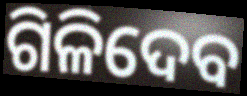
ଗିଳିଦେବ